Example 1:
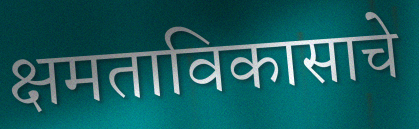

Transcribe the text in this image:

क्षमताविकासाचे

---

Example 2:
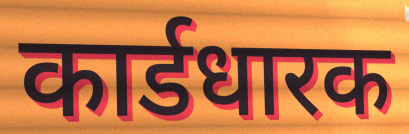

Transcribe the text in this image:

कार्डधारक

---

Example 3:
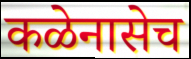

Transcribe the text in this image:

कळेनासेच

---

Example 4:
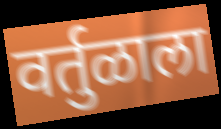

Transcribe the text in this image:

वर्तुळाला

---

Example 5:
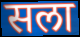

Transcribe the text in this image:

सला